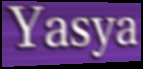
Yasya